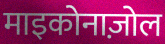
माइकोनाज़ोल